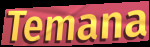
Temana